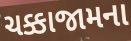
ચક્કાજામના